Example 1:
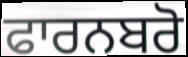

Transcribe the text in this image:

ਫਾਰਨਬਰੋ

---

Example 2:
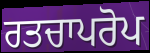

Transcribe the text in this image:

ਰਤਚਾਪਰੋਪ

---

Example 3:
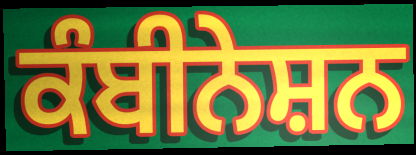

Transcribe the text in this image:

ਕੰਬੀਨੇਸ਼ਨ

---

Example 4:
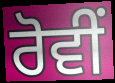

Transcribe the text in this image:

ਰੋਵੀਂ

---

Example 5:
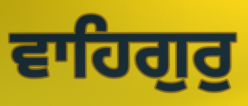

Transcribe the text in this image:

ਵਾਹਿਗੁਰੁ